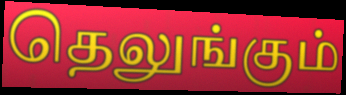
தெலுங்கும்